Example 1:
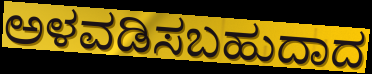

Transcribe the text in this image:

ಅಳವಡಿಸಬಹುದಾದ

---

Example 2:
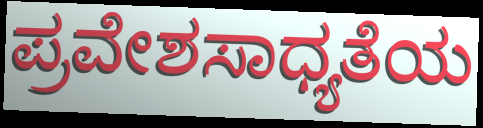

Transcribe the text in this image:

ಪ್ರವೇಶಸಾಧ್ಯತೆಯ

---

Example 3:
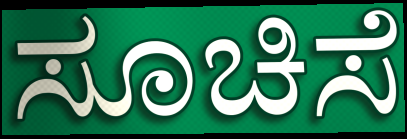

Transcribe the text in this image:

ಸೂಚಿಸೆ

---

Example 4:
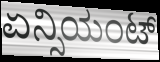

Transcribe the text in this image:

ಏನ್ಸಿಯಂಟ್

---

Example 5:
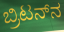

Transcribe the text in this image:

ಬ್ರಿಟನ್‌ನ